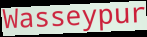
Wasseypur